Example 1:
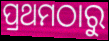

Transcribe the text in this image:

ପ୍ରଥମଠାରୁ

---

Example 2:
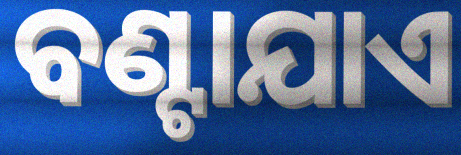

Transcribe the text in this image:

ବଣ୍ଟାଯାଏ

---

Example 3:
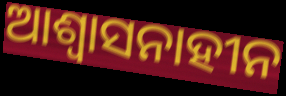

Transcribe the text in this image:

ଆଶ୍ୱାସନାହୀନ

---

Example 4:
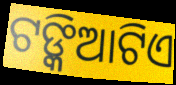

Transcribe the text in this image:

ଟଙ୍କିଆଟିଏ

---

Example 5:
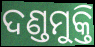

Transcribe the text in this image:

ଦଣ୍ଡମୁକ୍ତି